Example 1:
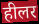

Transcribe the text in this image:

हीलर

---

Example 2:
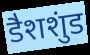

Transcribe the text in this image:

डैशशुंड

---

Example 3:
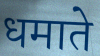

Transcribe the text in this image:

धमाते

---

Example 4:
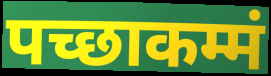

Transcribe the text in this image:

पच्छाकम्मं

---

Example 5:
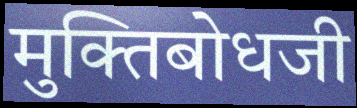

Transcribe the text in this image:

मुक्तिबोधजी